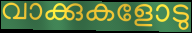
വാക്കുകളോടു